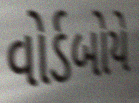
વોર્ડબોયે